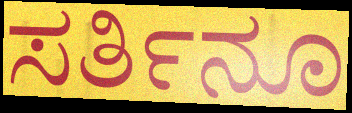
ಸರ್ತಿನೂ